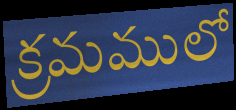
క్రమములో